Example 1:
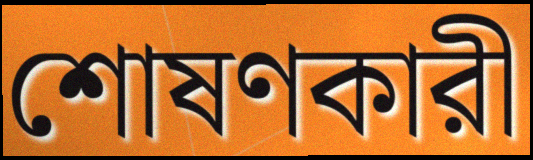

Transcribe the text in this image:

শোষণকারী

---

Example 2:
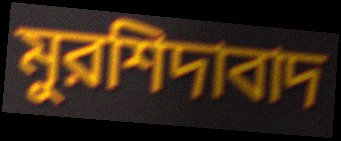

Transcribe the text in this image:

মুরশিদাবাদ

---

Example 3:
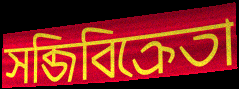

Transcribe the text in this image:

সব্জিবিক্রেতা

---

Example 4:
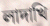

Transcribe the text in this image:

লাদাখি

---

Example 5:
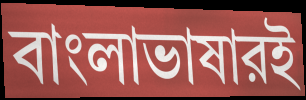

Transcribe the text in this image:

বাংলাভাষারই